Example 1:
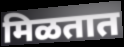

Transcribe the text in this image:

मिळतात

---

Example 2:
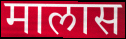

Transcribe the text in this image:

मालास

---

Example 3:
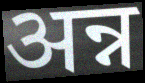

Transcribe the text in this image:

अन्न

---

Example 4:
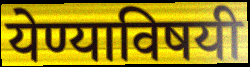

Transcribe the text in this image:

येण्याविषयी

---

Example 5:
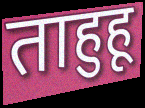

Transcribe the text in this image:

ताहुहू